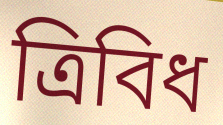
ত্রিবিধ